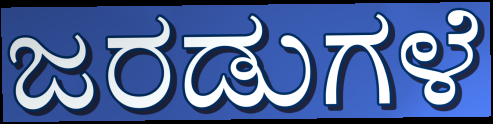
ಜರಡುಗಳೆ